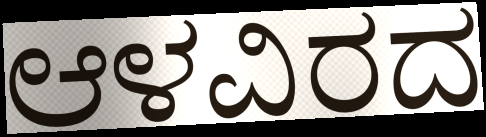
ಆಳವಿರದ